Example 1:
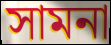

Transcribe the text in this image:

সামনা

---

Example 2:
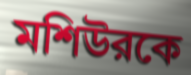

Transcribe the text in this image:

মশিউরকে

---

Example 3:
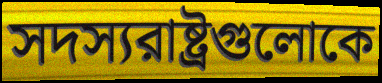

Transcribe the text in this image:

সদস্যরাষ্ট্রগুলোকে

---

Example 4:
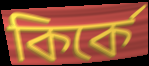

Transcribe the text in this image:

কির্কে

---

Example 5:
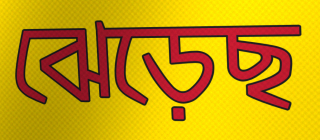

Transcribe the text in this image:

ঝেড়েছ